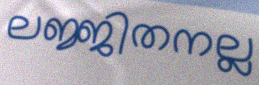
ലജ്ജിതനല്ല